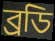
ব্রডি